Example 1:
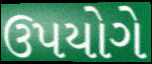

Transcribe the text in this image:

ઉપયોગે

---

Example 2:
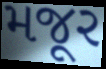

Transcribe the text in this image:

મજૂર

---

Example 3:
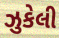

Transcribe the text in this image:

ઝુકેલી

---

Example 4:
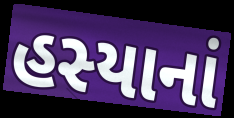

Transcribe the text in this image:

હસ્યાનાં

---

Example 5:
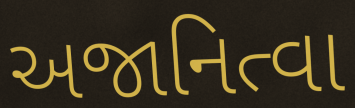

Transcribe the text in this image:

અજાનિત્વા